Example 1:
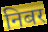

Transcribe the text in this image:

निबर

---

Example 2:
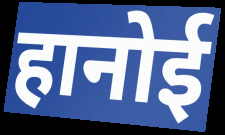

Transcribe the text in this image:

हानोई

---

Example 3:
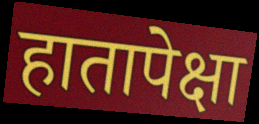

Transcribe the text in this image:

हातापेक्षा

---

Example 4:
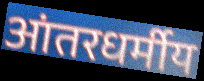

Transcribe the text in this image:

आंतरधर्मीय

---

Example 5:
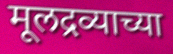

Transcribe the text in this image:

मूलद्रव्याच्या